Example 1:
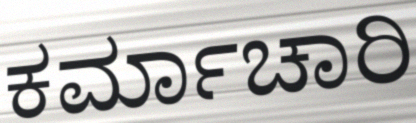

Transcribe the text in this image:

ಕರ್ಮಾಚಾರಿ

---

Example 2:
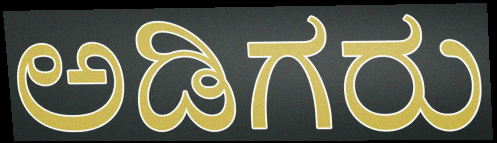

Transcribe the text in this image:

ಅಡಿಗರು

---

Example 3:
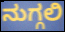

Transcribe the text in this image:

ನುಗ್ಗಲಿ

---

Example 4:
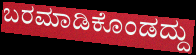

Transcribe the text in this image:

ಬರಮಾಡಿಕೊಂಡದ್ದು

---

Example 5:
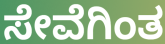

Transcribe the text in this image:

ಸೇವೆಗಿಂತ